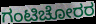
ಗಂಟಿಚೋರರ